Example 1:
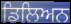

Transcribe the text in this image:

ਡਿਲਿਅਨ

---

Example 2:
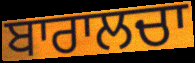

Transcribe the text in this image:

ਬਾਰਾਲਚਾ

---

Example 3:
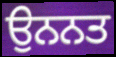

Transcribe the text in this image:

ਉਨਨਤ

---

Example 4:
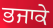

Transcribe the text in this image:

ਭਜਾਕੇ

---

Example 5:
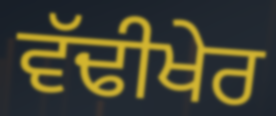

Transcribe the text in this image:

ਵੱਢੀਖੇਰ